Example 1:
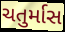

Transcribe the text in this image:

ચતુર્માસ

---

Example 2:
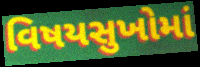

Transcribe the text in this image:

વિષયસુખોમાં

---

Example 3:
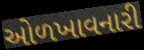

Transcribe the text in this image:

ઓળખાવનારી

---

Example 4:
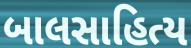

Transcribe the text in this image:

બાલસાહિત્ય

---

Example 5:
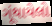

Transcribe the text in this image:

ગૂંથાયેલો